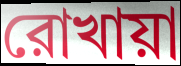
রোখায়া